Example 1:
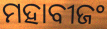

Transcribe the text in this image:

ମହାବୀଜଂ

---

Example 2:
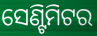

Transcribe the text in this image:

ସେଣ୍ଟିମିଟର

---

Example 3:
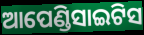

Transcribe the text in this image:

ଆପେଣ୍ଡିସାଇଟିସ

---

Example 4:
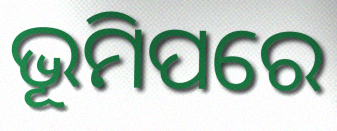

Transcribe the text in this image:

ଭୂମିପରେ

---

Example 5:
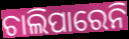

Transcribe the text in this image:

ଚାଲିପାରେନି